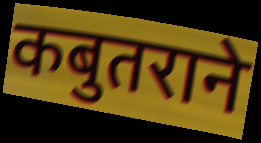
कबुतराने